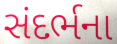
સંદર્ભના